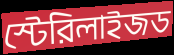
স্টেরিলাইজড